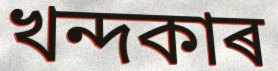
খন্দকাৰ